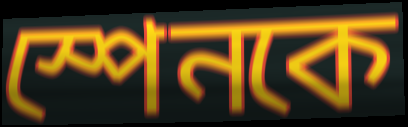
স্পেনকে